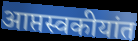
आप्तस्वकीयांत